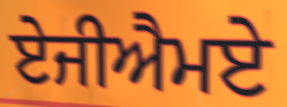
ਏਜੀਐਮਏ